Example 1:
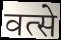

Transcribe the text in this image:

वत्से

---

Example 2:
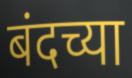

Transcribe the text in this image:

बंदच्या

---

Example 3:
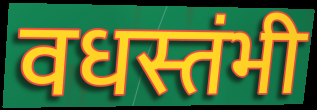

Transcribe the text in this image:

वधस्तंभी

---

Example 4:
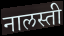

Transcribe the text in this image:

नालस्ती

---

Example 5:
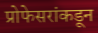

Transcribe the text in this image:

प्रोफेसरांकडून